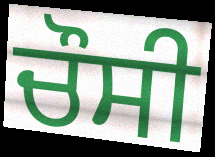
ਚੌਸੀ